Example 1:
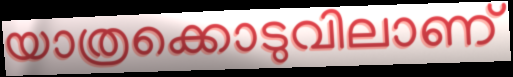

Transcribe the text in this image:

യാത്രക്കൊടുവിലാണ്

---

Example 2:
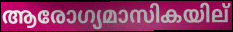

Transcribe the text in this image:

ആരോഗ്യമാസികയില്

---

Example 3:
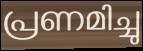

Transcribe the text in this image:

പ്രണമിച്ചു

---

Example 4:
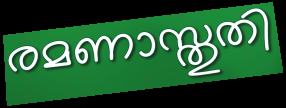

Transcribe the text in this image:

രമണാസ്തുതി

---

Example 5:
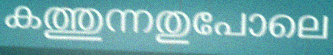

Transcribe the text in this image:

കത്തുന്നതുപോലെ